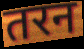
तरन